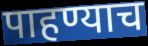
पाहण्याच